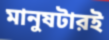
মানুষটারই